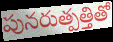
పునరుత్పత్తితో